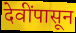
देवींपासून